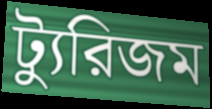
ট্যুরিজম